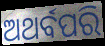
ଅଥର୍ବପରି